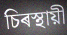
চিৰস্থায়ী